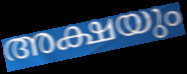
അക്ഷയും